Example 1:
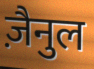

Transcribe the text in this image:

ज़ैनुल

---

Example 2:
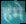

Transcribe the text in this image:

हंमे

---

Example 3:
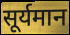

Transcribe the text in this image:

सूर्यमान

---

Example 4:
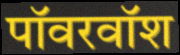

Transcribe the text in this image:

पॉवरवॉश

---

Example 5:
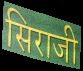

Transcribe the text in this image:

सिराजी